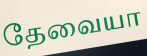
தேவையா